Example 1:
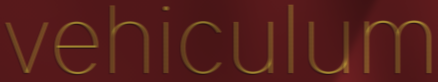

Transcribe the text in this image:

vehiculum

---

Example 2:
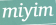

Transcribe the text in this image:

miyim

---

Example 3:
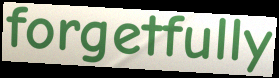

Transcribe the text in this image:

forgetfully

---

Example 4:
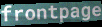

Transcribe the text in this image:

frontpage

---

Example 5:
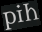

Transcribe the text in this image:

pih